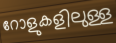
റോളുകളിലുള്ള